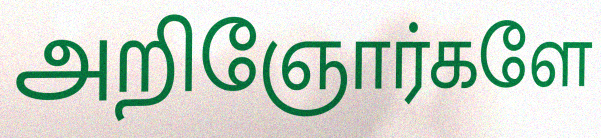
அறிஞோர்களே